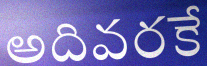
అదివరకే